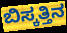
ಬಿಸ್ಕತ್ತಿನ